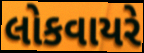
લોકવાયરે